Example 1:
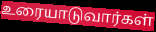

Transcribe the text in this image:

உரையாடுவார்கள்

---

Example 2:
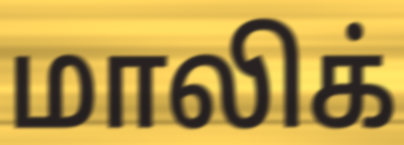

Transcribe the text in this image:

மாலிக்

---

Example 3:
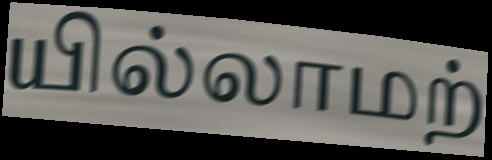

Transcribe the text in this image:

யில்லாமற்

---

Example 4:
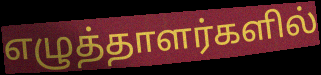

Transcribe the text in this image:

எழுத்தாளர்களில்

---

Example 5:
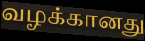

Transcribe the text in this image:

வழக்கானது